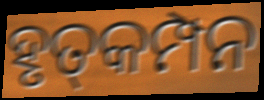
ହୃତ୍‌କମ୍ପନ